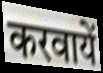
करवायें